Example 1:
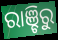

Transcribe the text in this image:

ରାଞ୍ଚିରୁ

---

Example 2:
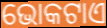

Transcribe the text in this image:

ଭୋକଟାଏ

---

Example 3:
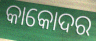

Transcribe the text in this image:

କାକୋଦର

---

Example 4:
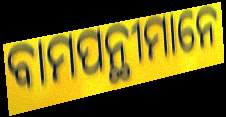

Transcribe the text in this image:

ବାମପନ୍ଥୀମାନେ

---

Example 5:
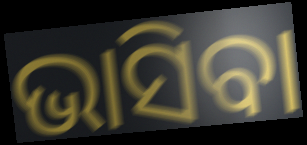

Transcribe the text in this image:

ଭାସିବା